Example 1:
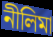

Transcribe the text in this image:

নীলিমা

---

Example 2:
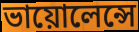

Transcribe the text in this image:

ভায়োলেন্সে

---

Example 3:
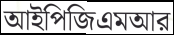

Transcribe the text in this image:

আইপিজিএমআর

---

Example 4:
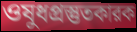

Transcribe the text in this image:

ওষুধপ্রস্তুতকারক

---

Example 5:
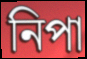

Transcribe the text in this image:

নিপা